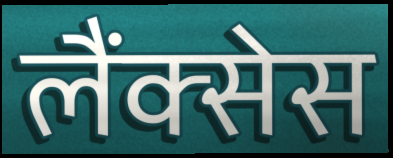
लैंक्‍सेस